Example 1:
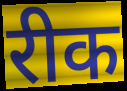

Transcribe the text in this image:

रीक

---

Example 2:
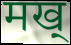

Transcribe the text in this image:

मख्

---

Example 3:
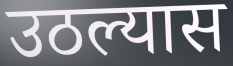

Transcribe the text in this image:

उठल्यास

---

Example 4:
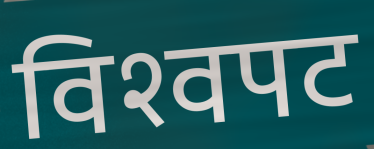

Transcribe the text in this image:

विश्वपट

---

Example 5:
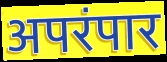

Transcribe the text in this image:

अपरंपार